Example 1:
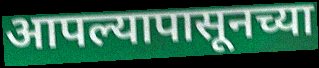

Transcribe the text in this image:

आपल्यापासूनच्या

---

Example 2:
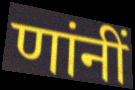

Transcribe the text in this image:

णांनीं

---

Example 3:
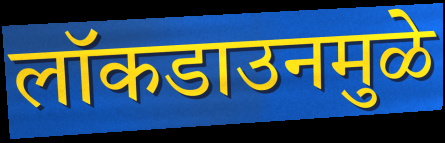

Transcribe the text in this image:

लॉकडाउनमुळे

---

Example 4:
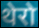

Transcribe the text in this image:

थेरो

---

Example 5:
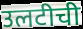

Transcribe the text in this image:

उलटीची